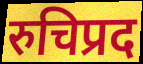
रुचिप्रद